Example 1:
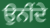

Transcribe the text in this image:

ਉਨੀਂਦੇ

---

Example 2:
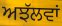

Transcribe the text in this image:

ਅਝੱਲਵਾਂ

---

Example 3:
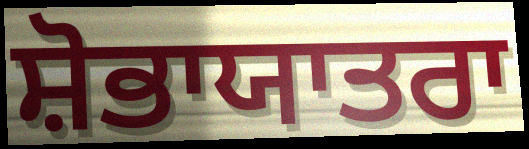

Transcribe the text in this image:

ਸ਼ੋਭਾਯਾਤਰਾ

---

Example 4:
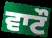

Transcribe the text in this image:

ਵਾਟੌ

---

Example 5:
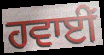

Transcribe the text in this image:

ਹਵਾਈਂ